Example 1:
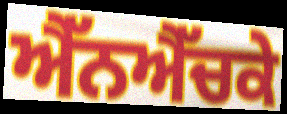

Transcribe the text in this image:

ਐੱਨਐੱਚਕੇ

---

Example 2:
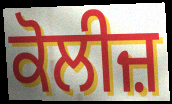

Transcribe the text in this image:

ਕੋਲੀਜ਼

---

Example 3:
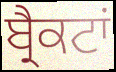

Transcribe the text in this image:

ਬ੍ਰੈਕਟਾਂ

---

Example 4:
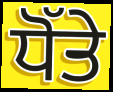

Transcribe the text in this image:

ਧੋੱਤੇ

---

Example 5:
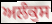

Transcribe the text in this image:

ਅਲੰਕੁਸ